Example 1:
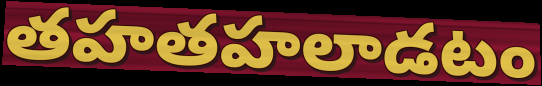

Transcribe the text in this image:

తహతహలాడటం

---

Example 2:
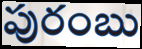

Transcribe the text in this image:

పురంబు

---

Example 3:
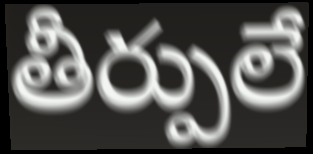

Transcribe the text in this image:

తీర్పులే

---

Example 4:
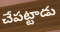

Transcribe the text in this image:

చేపట్టాడు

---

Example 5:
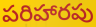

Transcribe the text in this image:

పరిహారపు